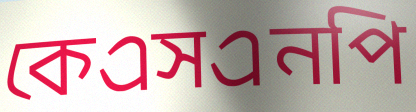
কেএসএনপি